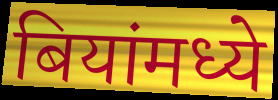
बियांमध्ये